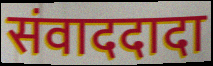
संवाददादा